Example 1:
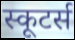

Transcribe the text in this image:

स्कूटर्स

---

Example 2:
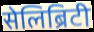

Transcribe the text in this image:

सेलिब्रिटी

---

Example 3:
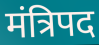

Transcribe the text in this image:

मंत्रिपद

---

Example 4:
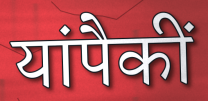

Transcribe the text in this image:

यांपैकीं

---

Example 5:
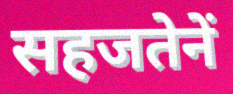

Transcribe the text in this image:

सहजतेनें